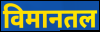
विमानतल